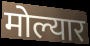
मोल्यार